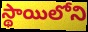
స్థాయిలోని